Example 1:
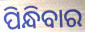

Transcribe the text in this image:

ପିନ୍ଧିବାର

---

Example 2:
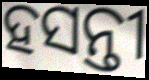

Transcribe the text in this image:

ହସନ୍ତୀ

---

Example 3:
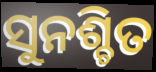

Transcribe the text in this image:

ସୁନଶ୍ଚିତ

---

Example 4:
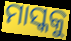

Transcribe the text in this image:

ମାସ୍କକୁ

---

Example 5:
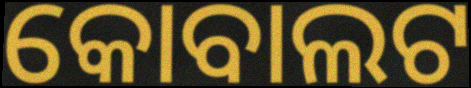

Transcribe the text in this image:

କୋବାଲଟ